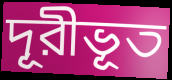
দূরীভূত